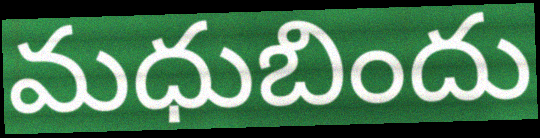
మధుబిందు